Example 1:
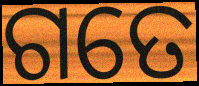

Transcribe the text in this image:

ଗତେ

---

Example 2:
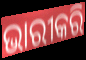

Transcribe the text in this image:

ଭାରୀକରି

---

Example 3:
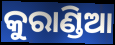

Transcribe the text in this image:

କୁରାଣ୍ଡିଆ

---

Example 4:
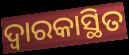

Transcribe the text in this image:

ଦ୍ୱାରକାସ୍ଥିତ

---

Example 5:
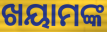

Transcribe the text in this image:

ଖୟାମଙ୍କ